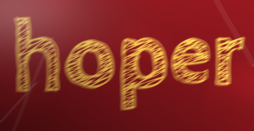
hoper